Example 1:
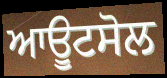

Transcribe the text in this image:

ਆਊਟਸੋਲ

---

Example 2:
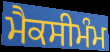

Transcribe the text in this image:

ਮੈਕਸੀਮੰਮ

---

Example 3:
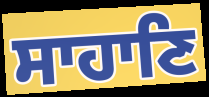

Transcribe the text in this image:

ਸਾਹਾਣਿ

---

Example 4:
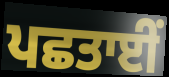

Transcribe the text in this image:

ਪਛਤਾਈਂ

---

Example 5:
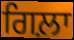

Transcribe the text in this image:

ਗਿਲ਼ਾ